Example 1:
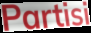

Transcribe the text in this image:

Partisi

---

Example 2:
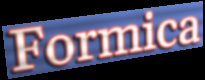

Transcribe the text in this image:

Formica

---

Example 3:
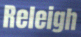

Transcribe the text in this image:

Releigh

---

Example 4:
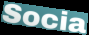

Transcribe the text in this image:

Socia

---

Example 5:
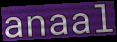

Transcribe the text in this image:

anaal